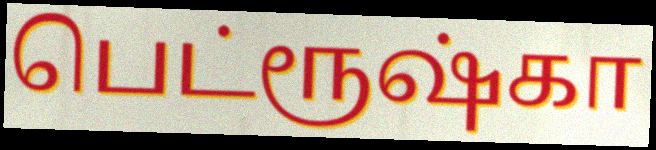
பெட்ரூஷ்கா